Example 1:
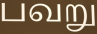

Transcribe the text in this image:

பவறு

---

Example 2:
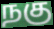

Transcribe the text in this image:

நகு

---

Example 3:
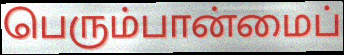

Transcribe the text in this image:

பெரும்பான்மைப்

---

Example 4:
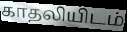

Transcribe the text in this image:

காதலியிடம்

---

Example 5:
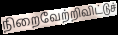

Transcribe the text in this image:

நிறைவேற்றிவிட்டுச்